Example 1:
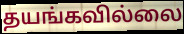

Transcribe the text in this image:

தயங்கவில்லை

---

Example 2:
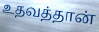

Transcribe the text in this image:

உதவத்தான்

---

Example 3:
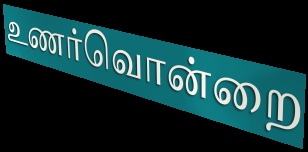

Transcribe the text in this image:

உணர்வொன்றை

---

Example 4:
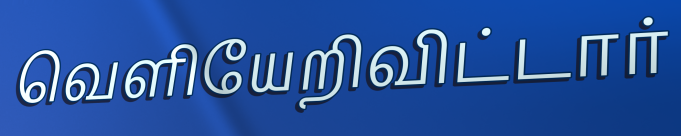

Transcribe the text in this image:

வெளியேறிவிட்டார்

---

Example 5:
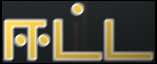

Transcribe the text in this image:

ஈட்ட